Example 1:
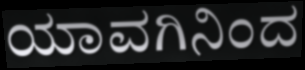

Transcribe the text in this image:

ಯಾವಗಿನಿಂದ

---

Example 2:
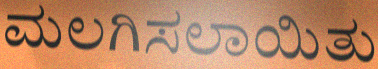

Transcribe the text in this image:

ಮಲಗಿಸಲಾಯಿತು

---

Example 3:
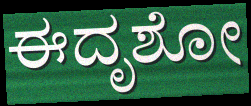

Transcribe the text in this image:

ಈದೃಶೋ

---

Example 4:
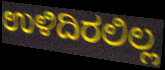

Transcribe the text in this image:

ಉಳಿದಿರಲಿಲ್ಲ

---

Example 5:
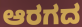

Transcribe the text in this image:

ಆರಗದ